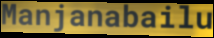
Manjanabailu